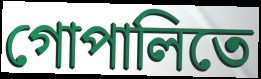
গোপালিতে